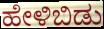
ಹೇಳಿಬಿಡು